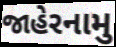
જાહેરનામુ